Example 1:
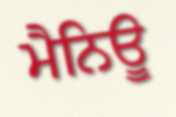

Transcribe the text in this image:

ਮੈਨਿਊ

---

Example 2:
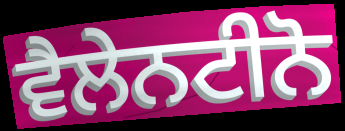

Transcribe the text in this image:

ਵੈਲੇਨਟੀਨੋ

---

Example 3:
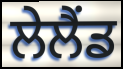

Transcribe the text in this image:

ਲੇਲੈਂਡ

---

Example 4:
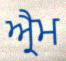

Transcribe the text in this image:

ਐ੍ਰਮ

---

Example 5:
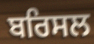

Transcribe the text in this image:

ਬਰਿਸਲ